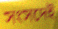
সংসদেই